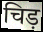
चिड़